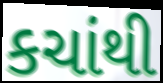
કચાંથી